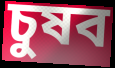
চুষব